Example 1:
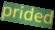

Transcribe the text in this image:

prided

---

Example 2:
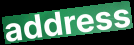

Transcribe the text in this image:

address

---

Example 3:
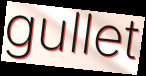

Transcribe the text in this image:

gullet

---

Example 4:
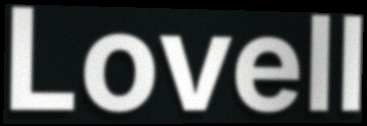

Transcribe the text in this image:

Lovell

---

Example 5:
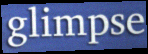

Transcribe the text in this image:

glimpse